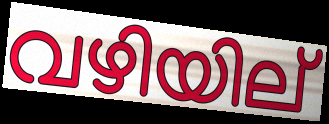
വഴിയില്